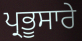
ਪ੍ਰਭੂਸਾਰੇ